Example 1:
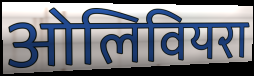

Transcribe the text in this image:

ओलिवियरा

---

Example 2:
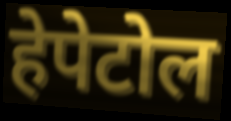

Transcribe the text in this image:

हेपेटोल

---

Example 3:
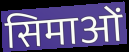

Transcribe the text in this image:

सिमाओं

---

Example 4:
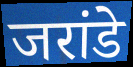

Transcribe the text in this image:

जरांडे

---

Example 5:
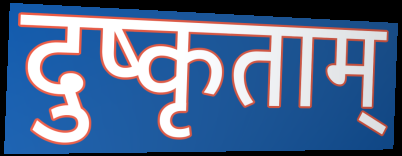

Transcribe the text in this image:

दुष्कृताम्